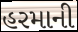
હરમાની